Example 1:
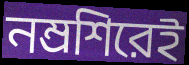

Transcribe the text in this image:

নম্রশিরেই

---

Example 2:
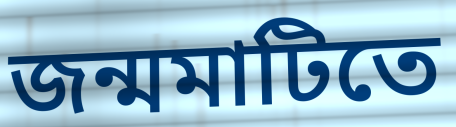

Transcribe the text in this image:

জন্মমাটিতে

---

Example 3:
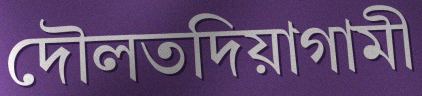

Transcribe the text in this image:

দৌলতদিয়াগামী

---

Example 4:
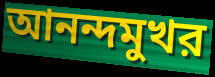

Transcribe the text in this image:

আনন্দমুখর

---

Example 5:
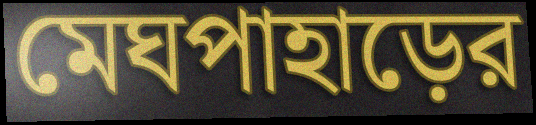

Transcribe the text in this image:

মেঘপাহাড়ের